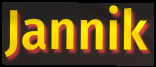
Jannik